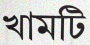
খামটি